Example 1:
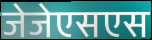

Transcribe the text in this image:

जेजेएसएस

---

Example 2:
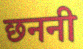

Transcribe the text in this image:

छननी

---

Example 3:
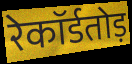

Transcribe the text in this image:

रेकॉर्डतोड़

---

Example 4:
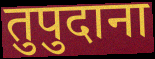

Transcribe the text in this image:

तुपुदाना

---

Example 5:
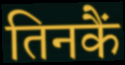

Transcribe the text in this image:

तिनकैं